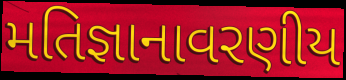
મતિજ્ઞાનાવરણીય